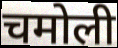
चमोली